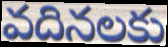
వదినలకు